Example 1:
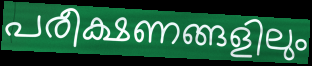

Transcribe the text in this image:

പരീക്ഷണങ്ങളിലും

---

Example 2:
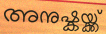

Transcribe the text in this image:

അനുഷ്കയ്ക്ക്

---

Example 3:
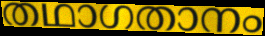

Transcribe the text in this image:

തഥാഗതാനം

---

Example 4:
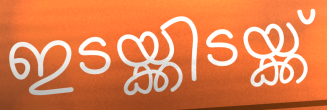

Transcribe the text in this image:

ഇടയ്ക്കിടയ്ക്ക്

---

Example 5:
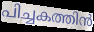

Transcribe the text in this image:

പിച്ചകത്തിൻ